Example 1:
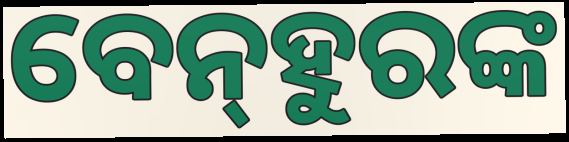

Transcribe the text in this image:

ବେନ୍‍ହୁରଙ୍କ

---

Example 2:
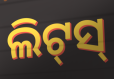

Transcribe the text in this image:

ଲିଟ୍‌ସ୍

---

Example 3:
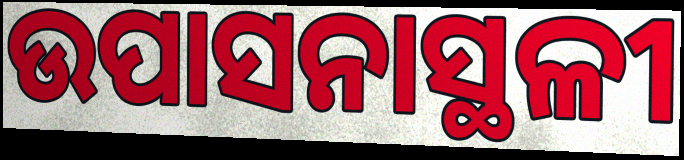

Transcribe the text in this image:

ଉପାସନାସ୍ଥଳୀ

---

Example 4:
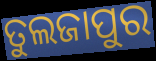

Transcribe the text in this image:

ତୁଲଜାପୁର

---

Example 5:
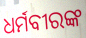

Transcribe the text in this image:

ଧର୍ମବୀରଙ୍କ